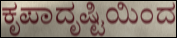
ಕೃಪಾದೃಷ್ಟಿಯಿಂದ